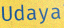
Udaya